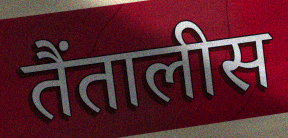
तैंतालीस